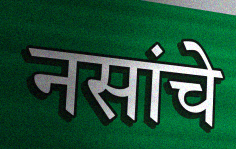
नसांचे